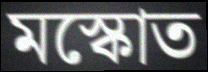
মস্কোত